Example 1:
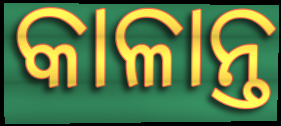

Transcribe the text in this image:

କାଳାନ୍ତ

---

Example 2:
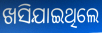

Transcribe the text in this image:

ଖସିଯାଇଥିଲେ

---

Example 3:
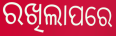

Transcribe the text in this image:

ରଖିଲାପରେ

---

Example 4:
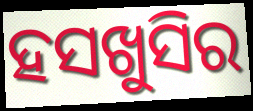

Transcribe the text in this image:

ହସଖୁସିର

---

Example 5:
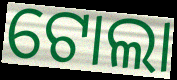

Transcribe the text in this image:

ଟୋଲା